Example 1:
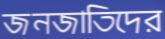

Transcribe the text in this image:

জনজাতিদের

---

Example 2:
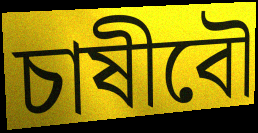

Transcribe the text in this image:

চাষীবৌ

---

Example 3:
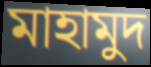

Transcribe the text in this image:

মাহামুদ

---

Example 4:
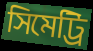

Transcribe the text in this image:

সিমেট্রি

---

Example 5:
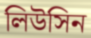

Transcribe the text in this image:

লিউসিন